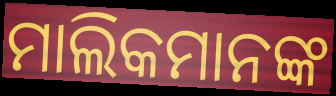
ମାଲିକମାନଙ୍କ